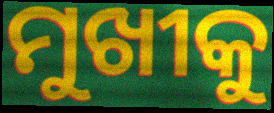
ମୁଖୀକୁ